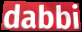
dabbi